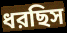
ধরছিস